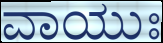
ವಾಯುಃ